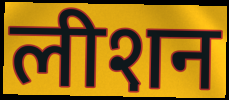
लीश़न